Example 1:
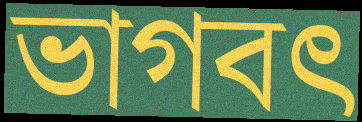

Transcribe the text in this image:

ভাগবৎ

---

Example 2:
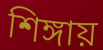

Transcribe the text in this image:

শিঙ্গায়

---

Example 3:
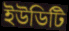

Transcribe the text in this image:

ইউডিটি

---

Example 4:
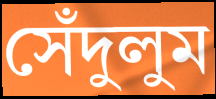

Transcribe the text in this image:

সেঁদুলুম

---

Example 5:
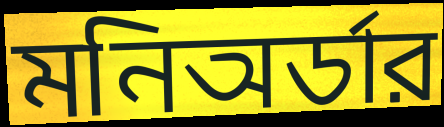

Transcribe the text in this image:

মনিঅর্ডার